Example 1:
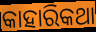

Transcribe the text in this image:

କାହାରିକଥା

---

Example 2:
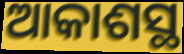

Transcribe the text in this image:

ଆକାଶସ୍ଥ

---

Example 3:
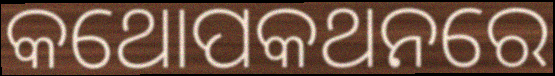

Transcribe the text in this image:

କଥୋପକଥନରେ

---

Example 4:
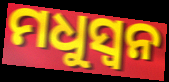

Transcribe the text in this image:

ମଧୁସ୍ୱନ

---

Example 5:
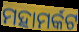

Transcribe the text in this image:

ମହାମର୍କଟ